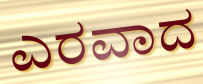
ಎರವಾದ